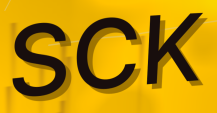
SCK